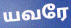
யவரே